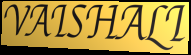
VAISHALI